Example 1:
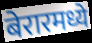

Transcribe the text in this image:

बेरारमध्ये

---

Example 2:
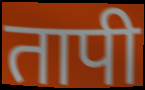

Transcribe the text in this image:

तापी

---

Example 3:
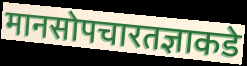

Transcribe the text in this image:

मानसोपचारतज्ञाकडे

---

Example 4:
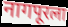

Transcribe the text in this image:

नागपूरला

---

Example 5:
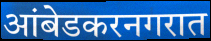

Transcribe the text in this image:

आंबेडकरनगरात